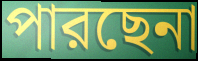
পারছেনা